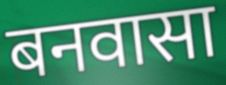
बनवासा